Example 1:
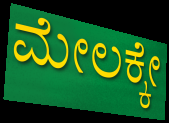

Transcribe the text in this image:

ಮೇಲಕ್ಕೇ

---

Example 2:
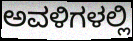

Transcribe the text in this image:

ಅವಳಿಗಳಲ್ಲಿ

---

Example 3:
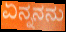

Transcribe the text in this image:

ಏನ್ನನನು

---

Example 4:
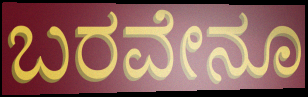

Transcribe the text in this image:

ಬರವೇನೂ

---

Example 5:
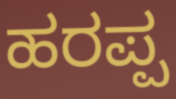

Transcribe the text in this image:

ಹರಪ್ಪ